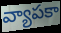
వ్యాపకా